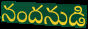
నందనుడి